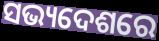
ସଭ୍ୟଦେଶରେ